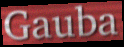
Gauba